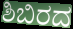
ಶಿಬಿರದ